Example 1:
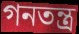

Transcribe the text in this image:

গনতন্ত্র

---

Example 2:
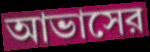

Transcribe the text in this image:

আভাসের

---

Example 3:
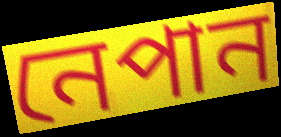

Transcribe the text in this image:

নেপান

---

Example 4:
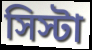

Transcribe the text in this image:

সিস্টা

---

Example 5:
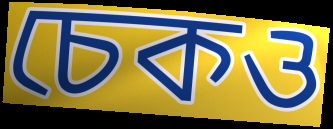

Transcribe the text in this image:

চেকও